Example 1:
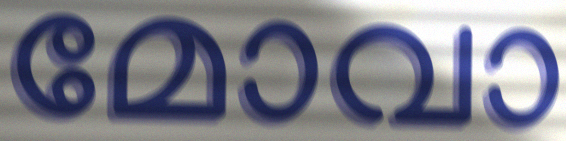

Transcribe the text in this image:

മോവാ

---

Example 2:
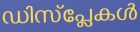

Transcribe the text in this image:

ഡിസ്പ്ലേകൾ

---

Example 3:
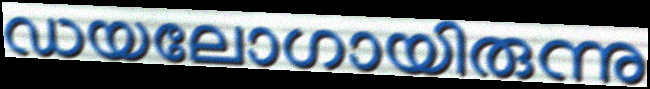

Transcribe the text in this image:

ഡയലോഗായിരുന്നു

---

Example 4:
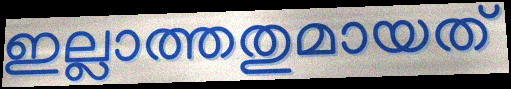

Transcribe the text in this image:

ഇല്ലാത്തതുമായത്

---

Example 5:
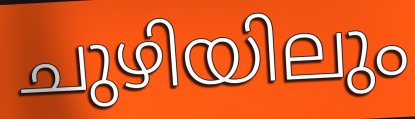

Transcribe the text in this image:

ചുഴിയിലും